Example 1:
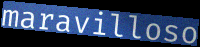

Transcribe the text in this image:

maravilloso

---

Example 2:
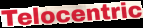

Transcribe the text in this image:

Telocentric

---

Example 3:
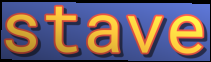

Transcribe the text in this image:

stave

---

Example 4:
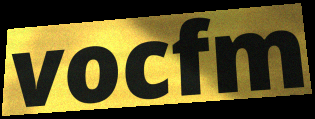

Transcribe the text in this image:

vocfm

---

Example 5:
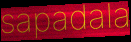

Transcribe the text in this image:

sapadala